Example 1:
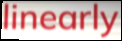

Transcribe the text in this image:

linearly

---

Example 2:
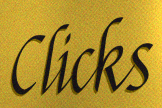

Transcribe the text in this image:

Clicks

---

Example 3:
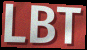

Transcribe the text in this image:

LBT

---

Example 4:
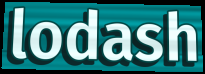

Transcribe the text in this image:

lodash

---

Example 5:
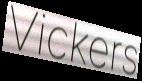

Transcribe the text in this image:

Vickers